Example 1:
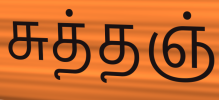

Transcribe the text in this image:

சுத்தஞ்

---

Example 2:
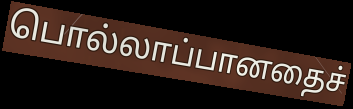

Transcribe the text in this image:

பொல்லாப்பானதைச்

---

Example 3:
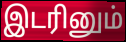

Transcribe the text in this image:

இடரினும்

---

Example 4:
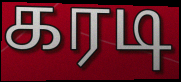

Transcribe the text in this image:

கரடி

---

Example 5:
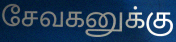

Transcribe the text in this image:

சேவகனுக்கு